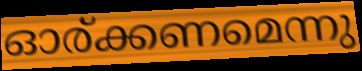
ഓര്ക്കണമെന്നു